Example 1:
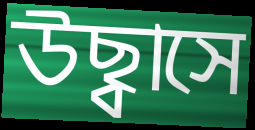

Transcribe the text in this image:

উছ্বাসে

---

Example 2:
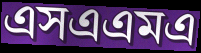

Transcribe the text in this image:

এসএএমএ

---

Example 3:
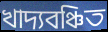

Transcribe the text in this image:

খাদ্যবঞ্চিত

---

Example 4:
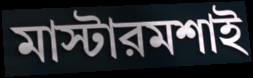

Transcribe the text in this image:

মাস্টারমশাই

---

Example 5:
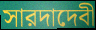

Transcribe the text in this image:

সারদাদেবী